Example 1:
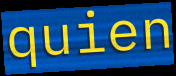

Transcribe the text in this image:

quien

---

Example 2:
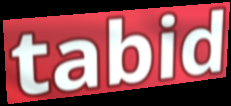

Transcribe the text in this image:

tabid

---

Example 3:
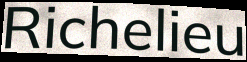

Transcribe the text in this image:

Richelieu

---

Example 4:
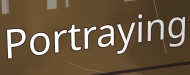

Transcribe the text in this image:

Portraying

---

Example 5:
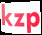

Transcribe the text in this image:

kzp